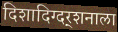
दिशादिग्दर्शनाला